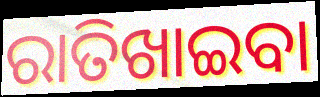
ରାତିଖାଇବା